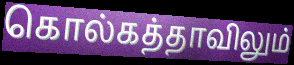
கொல்கத்தாவிலும்